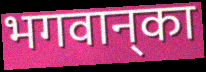
भगवान्‌का